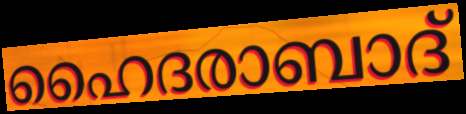
ഹൈദരാബാദ്